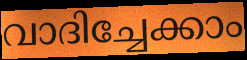
വാദിച്ചേക്കാം